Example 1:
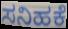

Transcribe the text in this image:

ಸನಿಹಕೆ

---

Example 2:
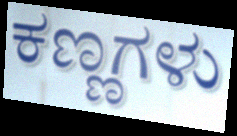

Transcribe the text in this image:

ಕಣ್ಣಗಳು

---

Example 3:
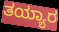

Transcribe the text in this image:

ತಯ್ಯಾರ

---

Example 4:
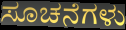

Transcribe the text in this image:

ಸೂಚನೆಗಳು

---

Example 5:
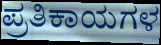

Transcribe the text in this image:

ಪ್ರತಿಕಾಯಗಳ